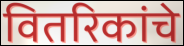
वितरिकांचे